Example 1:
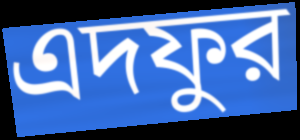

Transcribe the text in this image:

এদফুর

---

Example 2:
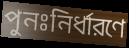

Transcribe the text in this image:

পুনঃনির্ধারণে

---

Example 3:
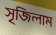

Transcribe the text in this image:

সৃজিলাম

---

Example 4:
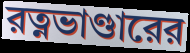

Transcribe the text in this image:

রত্নভাণ্ডারের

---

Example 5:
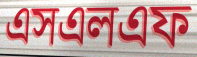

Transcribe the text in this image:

এসএলএফ